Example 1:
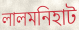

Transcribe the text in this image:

লালমনিহাট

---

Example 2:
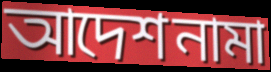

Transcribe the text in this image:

আদেশনামা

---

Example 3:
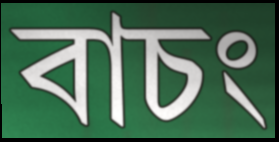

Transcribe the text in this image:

বাচং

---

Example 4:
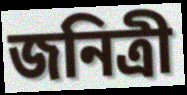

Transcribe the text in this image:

জনিত্রী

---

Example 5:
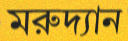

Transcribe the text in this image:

মরুদ্যান